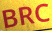
BRC